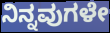
ನಿನ್ನವುಗಳೇ